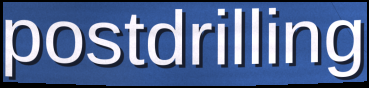
postdrilling